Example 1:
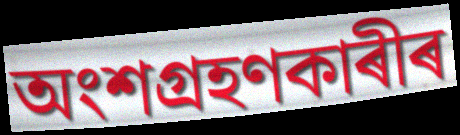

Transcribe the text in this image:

অংশগ্ৰহণকাৰীৰ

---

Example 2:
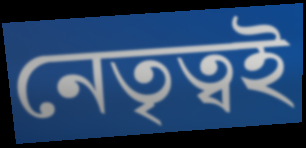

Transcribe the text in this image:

নেতৃত্বই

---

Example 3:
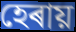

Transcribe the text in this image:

হেৰায়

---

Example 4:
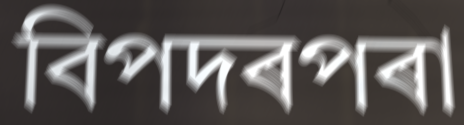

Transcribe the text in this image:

বিপদৰপৰা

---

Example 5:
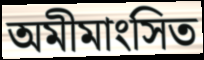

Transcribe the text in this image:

অমীমাংসিত